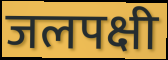
जलपक्षी